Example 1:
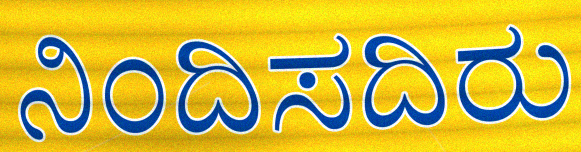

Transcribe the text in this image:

ನಿಂದಿಸದಿರು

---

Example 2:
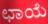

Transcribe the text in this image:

ಛಾಯೆ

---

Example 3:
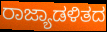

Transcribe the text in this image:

ರಾಜ್ಯಾಡಳಿತದ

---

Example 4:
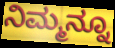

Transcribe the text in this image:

ನಿಮ್ಮನ್ನೂ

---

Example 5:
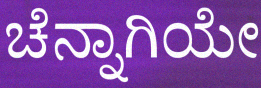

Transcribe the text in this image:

ಚೆನ್ನಾಗಿಯೇ